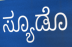
ಸ್ಯೂಡೊ